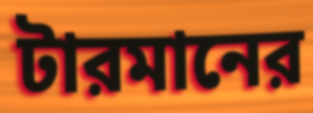
টারমানের